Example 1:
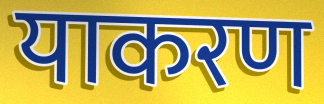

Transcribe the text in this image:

याकरण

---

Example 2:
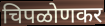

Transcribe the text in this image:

चिपळोणकर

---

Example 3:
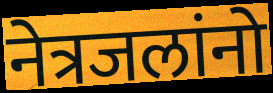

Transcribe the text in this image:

नेत्रजलांनो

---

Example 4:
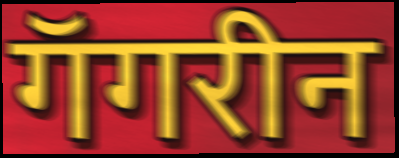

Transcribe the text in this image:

गॅगरीन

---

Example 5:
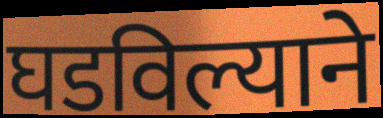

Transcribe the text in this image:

घडविल्याने